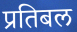
प्रतिबल